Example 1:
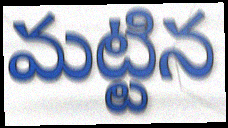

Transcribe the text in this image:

మట్టిన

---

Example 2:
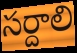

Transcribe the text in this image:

సర్దాలి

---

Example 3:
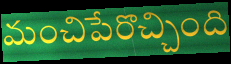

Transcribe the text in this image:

మంచిపేరొచ్చింది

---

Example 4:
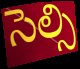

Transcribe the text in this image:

సెల్సి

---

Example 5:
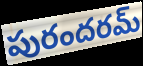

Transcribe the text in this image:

పురందరమ్